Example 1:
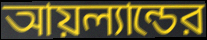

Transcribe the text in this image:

আয়ল্যান্ডের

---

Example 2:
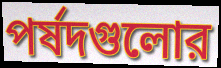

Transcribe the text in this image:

পর্ষদগুলোর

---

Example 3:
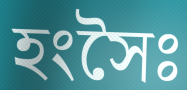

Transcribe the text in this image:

হংসৈঃ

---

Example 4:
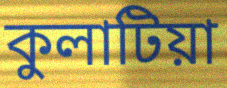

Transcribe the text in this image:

কুলাটিয়া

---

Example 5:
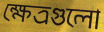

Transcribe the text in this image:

ক্ষেত্রগুলো